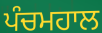
ਪੰਚਮਹਾਲ